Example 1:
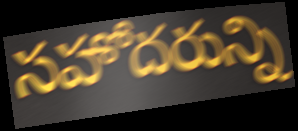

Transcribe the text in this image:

సహోదరున్ని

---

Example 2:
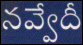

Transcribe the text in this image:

నవ్వేదీ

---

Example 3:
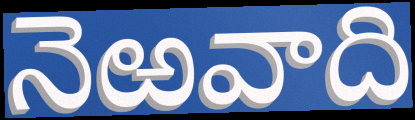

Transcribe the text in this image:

నెఱవాది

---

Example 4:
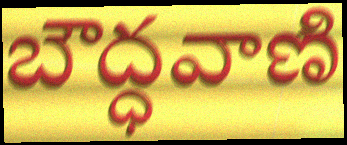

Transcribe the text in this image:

బౌద్ధవాణి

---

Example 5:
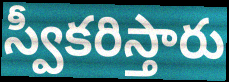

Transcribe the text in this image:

స్వీకరిస్తారు